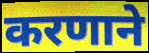
करणाने